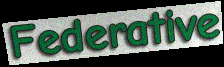
Federative